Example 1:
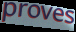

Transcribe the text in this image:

proves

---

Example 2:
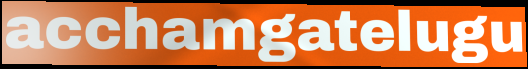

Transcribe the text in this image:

acchamgatelugu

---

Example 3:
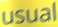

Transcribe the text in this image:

usual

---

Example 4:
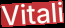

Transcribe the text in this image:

Vitali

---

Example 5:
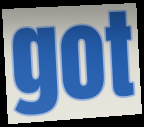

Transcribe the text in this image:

got